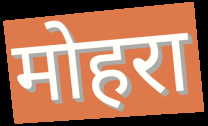
मोहरा